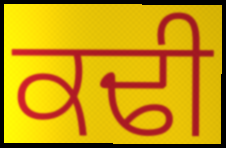
ਕਢੀ